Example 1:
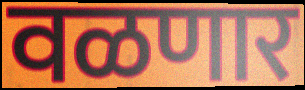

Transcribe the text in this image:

वळणार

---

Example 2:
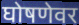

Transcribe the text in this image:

घोषणेवर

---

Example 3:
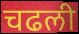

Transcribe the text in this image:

चढली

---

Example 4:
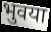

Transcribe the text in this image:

भुवया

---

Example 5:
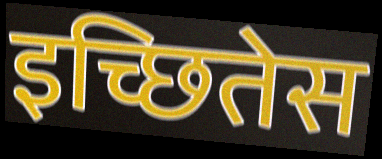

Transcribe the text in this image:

इच्छितेस